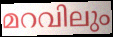
മറവിലും